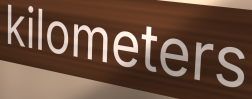
kilometers